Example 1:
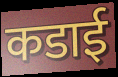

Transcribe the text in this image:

कडाई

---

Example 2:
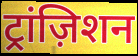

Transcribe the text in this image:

ट्रांज़िशन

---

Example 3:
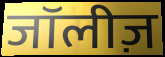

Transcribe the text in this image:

जॉलीज़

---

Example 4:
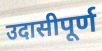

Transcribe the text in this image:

उदासीपूर्ण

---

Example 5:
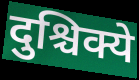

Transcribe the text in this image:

दुश्चिक्ये